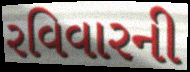
રવિવારની